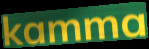
kamma